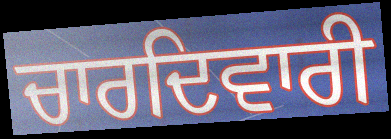
ਚਾਰਦਿਵਾਰੀ